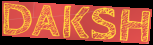
DAKSH